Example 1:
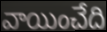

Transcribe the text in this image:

వాయించేది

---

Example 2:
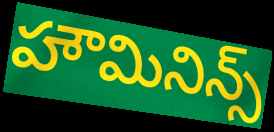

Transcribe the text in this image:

హౌమినిన్స్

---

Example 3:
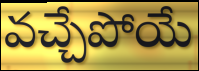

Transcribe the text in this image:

వచ్చేపోయే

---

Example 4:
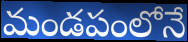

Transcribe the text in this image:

మండపంలోనే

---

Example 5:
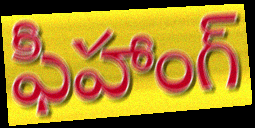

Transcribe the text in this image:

ఫీహాంగ్